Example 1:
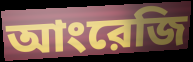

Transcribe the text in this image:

আংরেজি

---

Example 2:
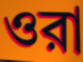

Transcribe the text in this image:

ওরা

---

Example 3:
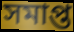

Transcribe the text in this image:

সমাপ্ত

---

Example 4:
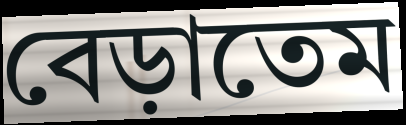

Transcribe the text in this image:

বেড়াতেম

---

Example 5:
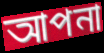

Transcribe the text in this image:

আপনা